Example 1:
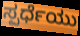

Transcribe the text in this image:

ಸ್ಪರ್ಧೆಯು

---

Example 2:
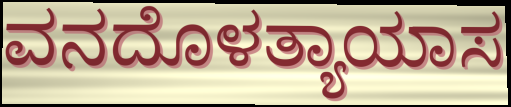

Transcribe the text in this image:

ವನದೊಳತ್ಯಾಯಾಸ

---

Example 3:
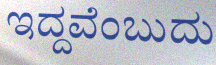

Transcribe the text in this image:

ಇದ್ದವೆಂಬುದು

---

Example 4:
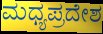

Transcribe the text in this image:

ಮಧ್ಯಪ್ರದೇಶ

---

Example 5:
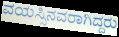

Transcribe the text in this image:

ವಯಸ್ಸಿನವರಾಗಿದ್ದರು